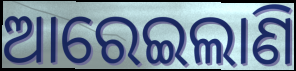
ଆରେଇଲାଣି